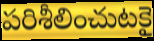
పరిశీలించుటకై